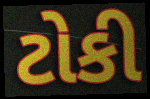
ટોકી